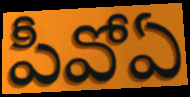
పీవోఏ